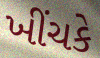
ખીંચકે